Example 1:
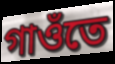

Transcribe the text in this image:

গাওঁতে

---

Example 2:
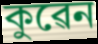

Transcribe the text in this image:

কুৱেন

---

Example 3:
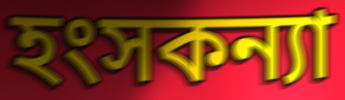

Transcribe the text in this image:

হংসকন্যা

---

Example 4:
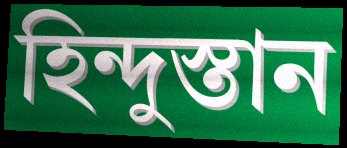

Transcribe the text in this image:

হিন্দুস্তান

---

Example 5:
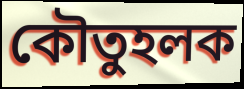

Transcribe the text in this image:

কৌতুহলক